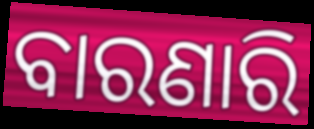
ବାରଣାରି